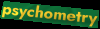
psychometry